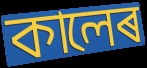
কালেৰ